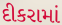
દીકરામાં